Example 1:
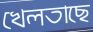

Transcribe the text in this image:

খেলতাছে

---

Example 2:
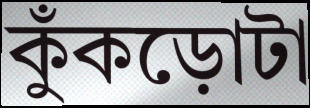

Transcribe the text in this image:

কুঁকড়োটা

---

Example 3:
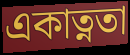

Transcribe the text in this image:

একাত্নতা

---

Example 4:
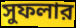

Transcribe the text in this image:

সুফলার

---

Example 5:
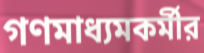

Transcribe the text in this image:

গণমাধ্যমকর্মীর